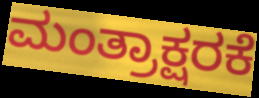
ಮಂತ್ರಾಕ್ಷರಕೆ